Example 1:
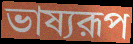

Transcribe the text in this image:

ভাষ্যরূপ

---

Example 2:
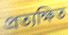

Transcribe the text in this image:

প্রত্যক্ষিত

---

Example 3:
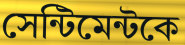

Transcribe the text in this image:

সেন্টিমেন্টকে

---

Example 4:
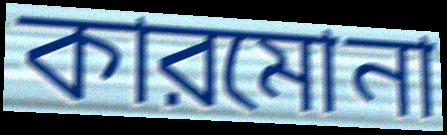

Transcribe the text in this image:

কারমোনা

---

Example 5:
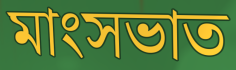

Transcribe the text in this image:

মাংসভাত